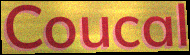
Coucal